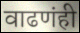
वाढणंही